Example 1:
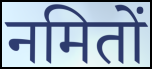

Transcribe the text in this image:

नमितों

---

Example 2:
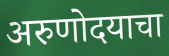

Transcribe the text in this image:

अरुणोदयाचा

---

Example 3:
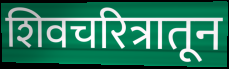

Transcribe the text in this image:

शिवचरित्रातून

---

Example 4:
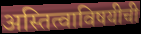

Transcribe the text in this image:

अस्तित्वाविषयीची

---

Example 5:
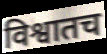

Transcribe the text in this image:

विश्वातच